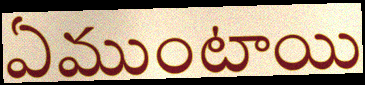
ఏముంటాయి